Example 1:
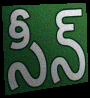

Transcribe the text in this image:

సీన్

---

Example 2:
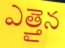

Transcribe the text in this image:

ఎత్తైన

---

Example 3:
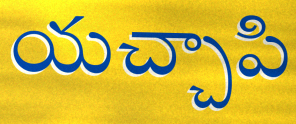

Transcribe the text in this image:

యచ్చాపి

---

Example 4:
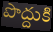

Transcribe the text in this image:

పొద్దుకి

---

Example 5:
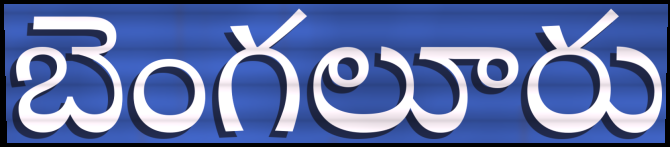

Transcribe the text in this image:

బెంగలూరు